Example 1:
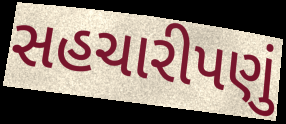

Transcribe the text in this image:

સહચારીપણું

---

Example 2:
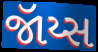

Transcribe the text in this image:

જૉય્સ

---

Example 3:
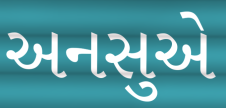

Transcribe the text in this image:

અનસુએ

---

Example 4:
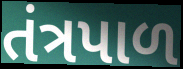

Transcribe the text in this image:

તંત્રપાળ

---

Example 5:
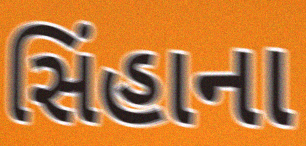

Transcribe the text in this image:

સિંહાના